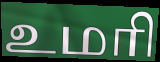
உமரி